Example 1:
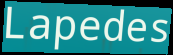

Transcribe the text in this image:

Lapedes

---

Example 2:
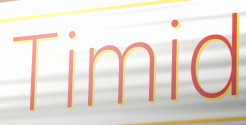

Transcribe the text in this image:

Timid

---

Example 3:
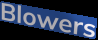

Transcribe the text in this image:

Blowers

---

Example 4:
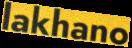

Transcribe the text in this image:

lakhano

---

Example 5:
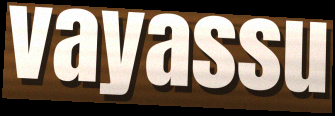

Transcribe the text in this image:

vayassu